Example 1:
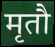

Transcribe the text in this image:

मृतौ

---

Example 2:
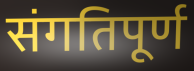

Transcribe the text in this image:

संगतिपूर्ण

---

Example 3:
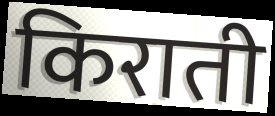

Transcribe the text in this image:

किराती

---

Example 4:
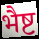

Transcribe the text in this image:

भैष्ट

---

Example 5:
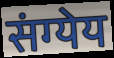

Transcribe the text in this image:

संग्येय